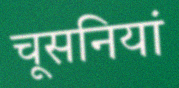
चूसनियां